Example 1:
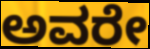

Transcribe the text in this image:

ಅವರೇ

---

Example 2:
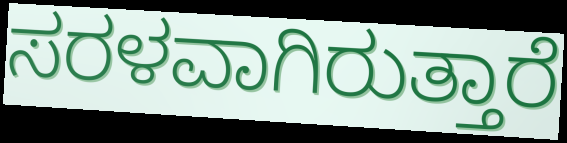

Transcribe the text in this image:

ಸರಳವಾಗಿರುತ್ತಾರೆ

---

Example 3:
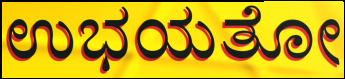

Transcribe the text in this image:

ಉಭಯತೋ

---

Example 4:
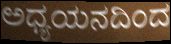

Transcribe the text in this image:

ಅಧ್ಯಯನದಿಂದ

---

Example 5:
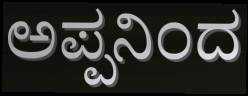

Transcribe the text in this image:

ಅಪ್ಪನಿಂದ